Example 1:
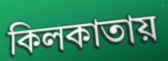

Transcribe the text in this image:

কিলকাতায়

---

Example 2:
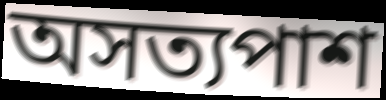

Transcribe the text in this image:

অসত্যপাশ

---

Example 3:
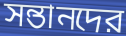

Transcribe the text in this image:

সন্তানদের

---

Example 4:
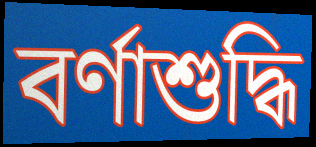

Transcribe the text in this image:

বর্ণাশুদ্ধি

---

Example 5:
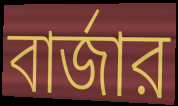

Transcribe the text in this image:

বার্জার